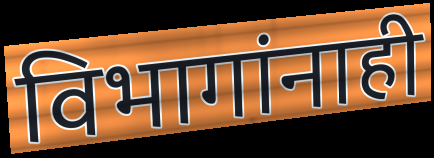
विभागांनाही